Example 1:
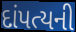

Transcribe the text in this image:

દાંપત્યની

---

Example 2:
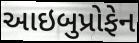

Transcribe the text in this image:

આઇબુપ્રોફેન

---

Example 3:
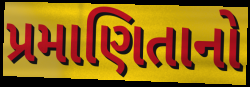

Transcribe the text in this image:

પ્રમાણિતાનો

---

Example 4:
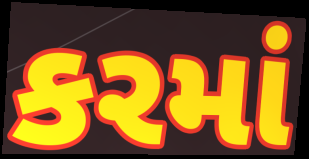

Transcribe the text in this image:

કરમાં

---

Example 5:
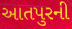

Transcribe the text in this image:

આતપુરની